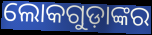
ଲୋକଗୁଡ଼ାଙ୍କର